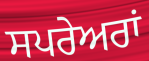
ਸਪਰੇਅਰਾਂ